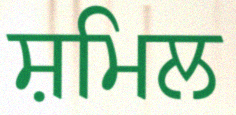
ਸ਼ਮਿਲ